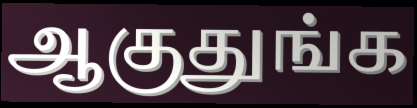
ஆகுதுங்க